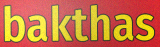
bakthas